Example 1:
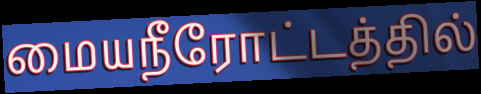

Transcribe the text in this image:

மையநீரோட்டத்தில்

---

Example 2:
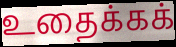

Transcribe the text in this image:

உதைக்கக்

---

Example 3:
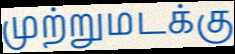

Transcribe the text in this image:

முற்றுமடக்கு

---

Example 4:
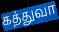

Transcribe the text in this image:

கத்துவா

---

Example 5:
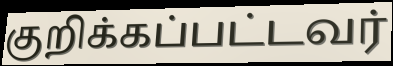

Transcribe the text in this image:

குறிக்கப்பட்டவர்